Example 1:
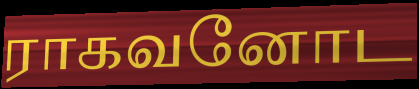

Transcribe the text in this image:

ராகவனோட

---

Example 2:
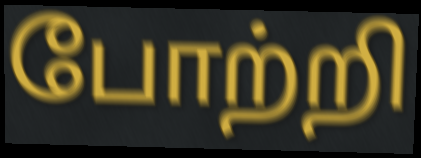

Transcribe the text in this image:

போற்றி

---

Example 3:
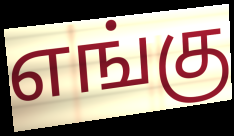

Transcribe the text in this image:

எங்கு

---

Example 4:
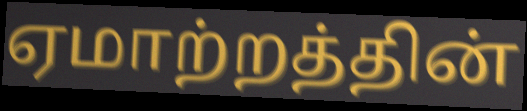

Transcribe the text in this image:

ஏமாற்றத்தின்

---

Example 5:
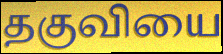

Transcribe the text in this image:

தகுவியை